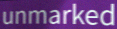
unmarked